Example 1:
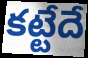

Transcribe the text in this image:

కట్టేదే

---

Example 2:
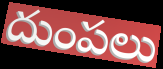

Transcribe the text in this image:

దుంపలు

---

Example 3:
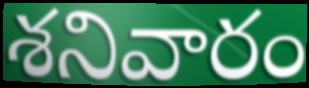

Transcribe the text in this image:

శనివారం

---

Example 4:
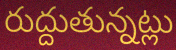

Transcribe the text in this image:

రుద్దుతున్నట్లు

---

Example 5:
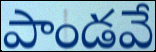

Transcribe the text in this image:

పాండవే